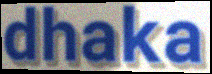
dhaka